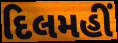
દિલમહીં